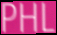
PHL